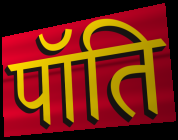
पॉति